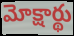
మోక్షార్థు